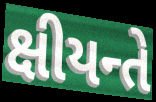
ક્ષીયન્તે